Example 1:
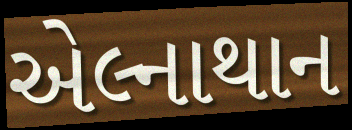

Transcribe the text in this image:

એલ્નાથાન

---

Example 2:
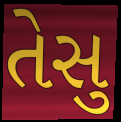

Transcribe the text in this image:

તેસુ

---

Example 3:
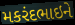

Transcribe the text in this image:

મકરંદભાઇને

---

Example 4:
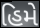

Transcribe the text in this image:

હિમે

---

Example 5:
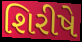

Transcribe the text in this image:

શિરીષે